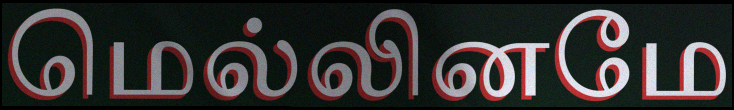
மெல்லினமே